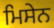
ਮਿਸੇਨ